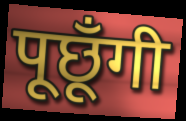
पूछूँगी